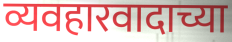
व्यवहारवादाच्या